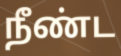
நீண்ட